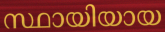
സ്ഥായിയായ